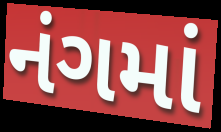
નંગમાં